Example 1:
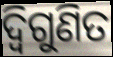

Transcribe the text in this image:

ଦ୍ଵିଗୁଣିତ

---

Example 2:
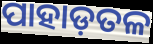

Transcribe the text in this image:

ପାହାଡ଼ତଳ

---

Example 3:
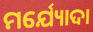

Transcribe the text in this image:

ମର୍ଯ୍ୟୋଦା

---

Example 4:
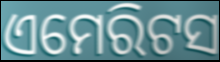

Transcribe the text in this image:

ଏମେରିଟସ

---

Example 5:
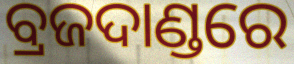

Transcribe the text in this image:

ବ୍ରଜଦାଣ୍ଡରେ